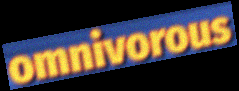
omnivorous